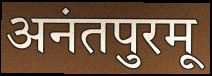
अनंतपुरमू